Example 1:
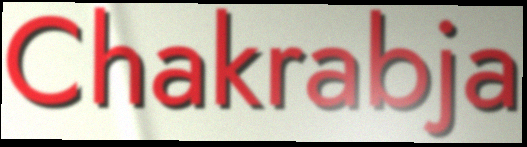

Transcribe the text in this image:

Chakrabja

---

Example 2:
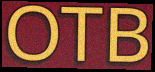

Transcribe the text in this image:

OTB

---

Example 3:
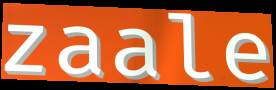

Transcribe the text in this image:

zaale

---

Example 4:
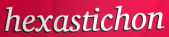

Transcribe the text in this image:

hexastichon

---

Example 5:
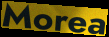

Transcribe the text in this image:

Morea